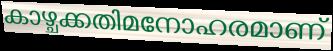
കാഴ്ചക്കതിമനോഹരമാണ്